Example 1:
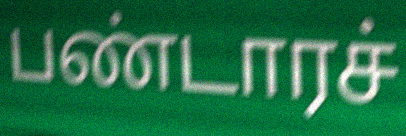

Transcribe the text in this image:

பண்டாரச்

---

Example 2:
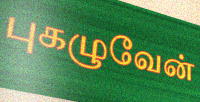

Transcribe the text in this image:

புகழுவேன்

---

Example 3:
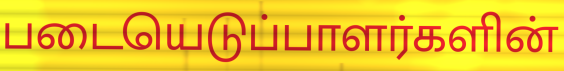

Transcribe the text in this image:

படையெடுப்பாளர்களின்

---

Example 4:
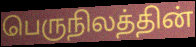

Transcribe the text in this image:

பெருநிலத்தின்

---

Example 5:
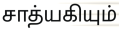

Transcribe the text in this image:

சாத்யகியும்